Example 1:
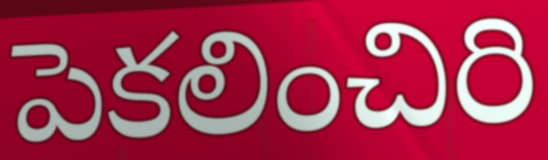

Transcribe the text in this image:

పెకలించిరి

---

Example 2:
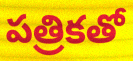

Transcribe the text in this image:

పత్రికతో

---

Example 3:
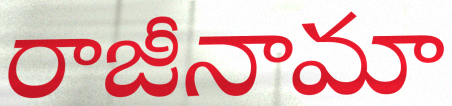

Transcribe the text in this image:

రాజీనామా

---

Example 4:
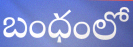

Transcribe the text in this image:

బంధంలో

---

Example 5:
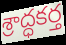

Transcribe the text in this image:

శ్రాద్ధకర్త